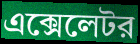
এক্সেলেটর